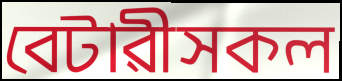
বেটাৱীসকল